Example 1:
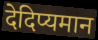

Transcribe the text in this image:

देदिप्यमान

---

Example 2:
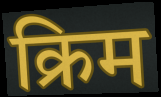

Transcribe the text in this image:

क्रिम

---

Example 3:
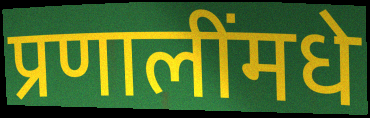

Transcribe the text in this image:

प्रणालींमधे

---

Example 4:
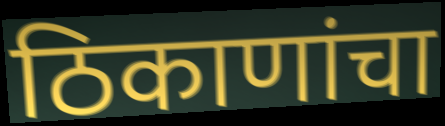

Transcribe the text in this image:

ठिकाणांचा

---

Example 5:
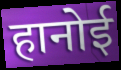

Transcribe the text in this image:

हानोई